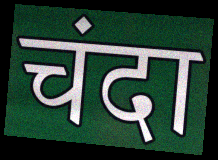
चंदा